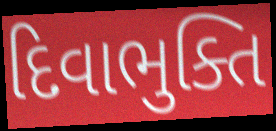
દિવાભુક્તિ